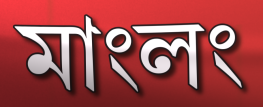
মাংলং